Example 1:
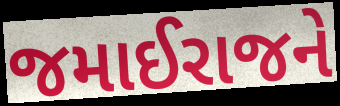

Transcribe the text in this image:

જમાઈરાજને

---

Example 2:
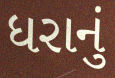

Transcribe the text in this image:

ધરાનું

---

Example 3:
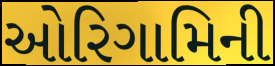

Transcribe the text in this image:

ઓરિગામિની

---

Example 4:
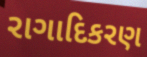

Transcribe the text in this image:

રાગાદિકરણ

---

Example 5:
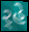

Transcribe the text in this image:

ર્‍હે